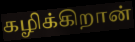
கழிக்கிறான்